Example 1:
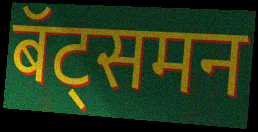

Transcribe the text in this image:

बॅट्समन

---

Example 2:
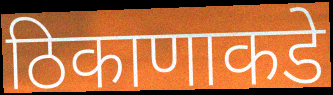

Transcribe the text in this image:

ठिकाणाकडे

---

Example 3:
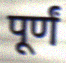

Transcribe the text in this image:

पूर्णं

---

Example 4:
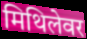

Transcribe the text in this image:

मिथिलेवर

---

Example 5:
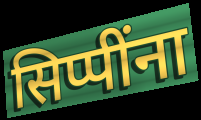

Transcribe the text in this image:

सिप्पींना